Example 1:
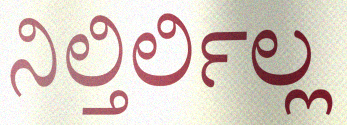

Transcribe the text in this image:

ನಿಲ್ತಿರ್ಲಿಲ್ಲ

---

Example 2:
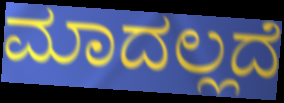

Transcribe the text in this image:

ಮಾದಲ್ಲದೆ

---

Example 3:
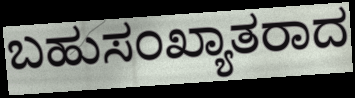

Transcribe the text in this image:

ಬಹುಸಂಖ್ಯಾತರಾದ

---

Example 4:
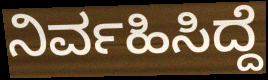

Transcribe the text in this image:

ನಿರ್ವಹಿಸಿದ್ದೆ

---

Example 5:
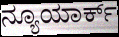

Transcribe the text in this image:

ನ್ಯೂಯಾರ್ಕ್